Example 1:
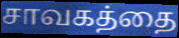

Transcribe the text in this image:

சாவகத்தை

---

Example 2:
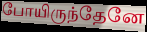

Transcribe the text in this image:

போயிருந்தேனே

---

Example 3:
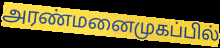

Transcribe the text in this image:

அரண்மனைமுகப்பில்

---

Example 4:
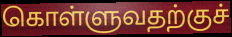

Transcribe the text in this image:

கொள்ளுவதற்குச்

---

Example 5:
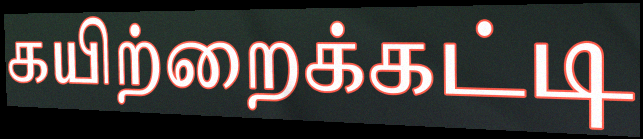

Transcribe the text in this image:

கயிற்றைக்கட்டி